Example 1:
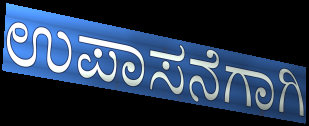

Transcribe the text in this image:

ಉಪಾಸನೆಗಾಗಿ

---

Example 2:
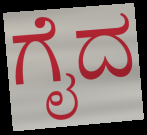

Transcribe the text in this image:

ಗೈದ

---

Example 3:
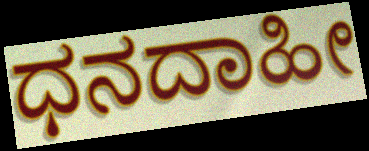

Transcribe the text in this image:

ಧನದಾಹೀ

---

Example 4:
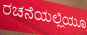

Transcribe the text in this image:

ರಚನೆಯಲ್ಲಿಯೂ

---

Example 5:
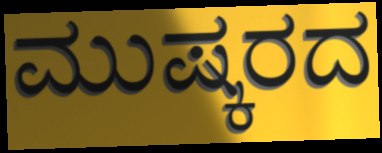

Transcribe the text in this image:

ಮುಷ್ಕರದ